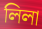
লিলা